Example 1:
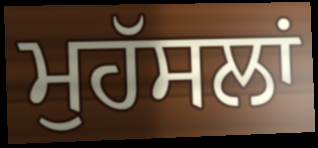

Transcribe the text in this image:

ਮੁਹੱਸਲਾਂ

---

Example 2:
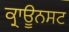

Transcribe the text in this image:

ਕ੍ਰਾਊਨਸਟ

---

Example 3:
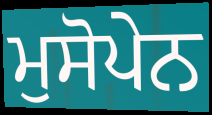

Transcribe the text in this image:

ਮੁਸੋਪੇਨ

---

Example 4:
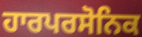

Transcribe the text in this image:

ਹਾਰਪਰਸੋਨਿਕ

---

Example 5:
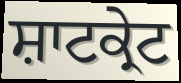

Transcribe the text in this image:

ਸ਼ਾਟਕ੍ਰੇਟ